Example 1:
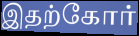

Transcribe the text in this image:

இதற்கோர்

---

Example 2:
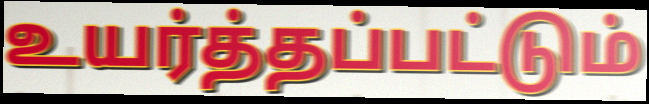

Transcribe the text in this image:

உயர்த்தப்பட்டும்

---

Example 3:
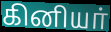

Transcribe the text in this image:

கினியர்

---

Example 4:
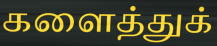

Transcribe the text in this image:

களைத்துக்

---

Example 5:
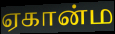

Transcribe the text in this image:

ஏகான்ம